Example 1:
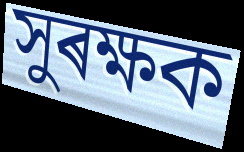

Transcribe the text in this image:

সুৰক্ষক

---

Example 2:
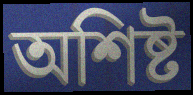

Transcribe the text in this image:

অশিষ্ট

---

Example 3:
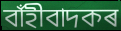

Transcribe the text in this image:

বাঁহীবাদকৰ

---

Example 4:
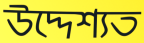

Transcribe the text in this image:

উদ্দেশ্যত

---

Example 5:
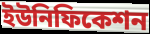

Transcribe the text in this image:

ইউনিফিকেশন